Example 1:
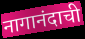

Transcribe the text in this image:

नागानंदाची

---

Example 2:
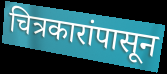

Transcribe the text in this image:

चित्रकारांपासून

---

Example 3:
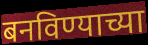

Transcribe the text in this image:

बनविण्याच्या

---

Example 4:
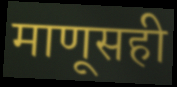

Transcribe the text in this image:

माणूसही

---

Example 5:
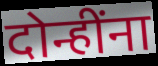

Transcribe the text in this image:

दोन्हींना